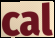
cal